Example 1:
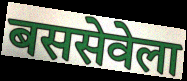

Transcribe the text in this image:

बससेवेला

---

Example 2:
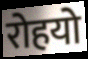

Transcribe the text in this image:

रोहयो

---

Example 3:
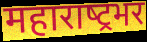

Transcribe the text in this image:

महाराष्ट्रभर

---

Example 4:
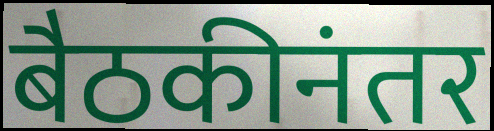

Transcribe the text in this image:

बैठकीनंतर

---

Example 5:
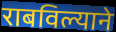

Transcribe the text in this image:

राबविल्याने